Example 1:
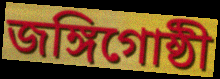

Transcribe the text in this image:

জঙ্গিগোষ্ঠী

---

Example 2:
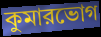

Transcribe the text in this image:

কুমারভোগ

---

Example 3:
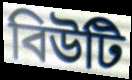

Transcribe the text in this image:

বিউটি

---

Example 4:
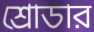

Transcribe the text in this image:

শ্রোডার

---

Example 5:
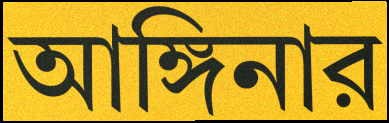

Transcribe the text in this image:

আঙ্গিনার